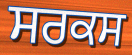
ਸਰਕਸ